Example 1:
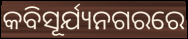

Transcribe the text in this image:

କବିସୂର୍ଯ୍ୟନଗରରେ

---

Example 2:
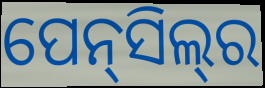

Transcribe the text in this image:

ପେନ୍‌ସିଲ୍‌ର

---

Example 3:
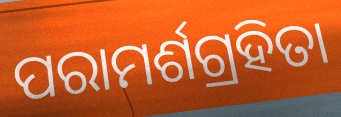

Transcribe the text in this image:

ପରାମର୍ଶଗ୍ରହିତା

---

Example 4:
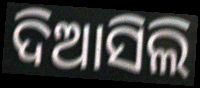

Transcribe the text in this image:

ଦିଆସିଲି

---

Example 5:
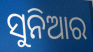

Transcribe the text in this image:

ସୁନିଆର